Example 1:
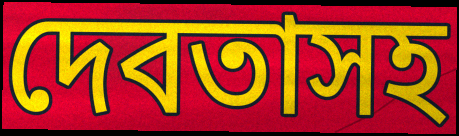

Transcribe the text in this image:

দেবতাসহ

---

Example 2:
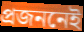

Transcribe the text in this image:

প্রজননেই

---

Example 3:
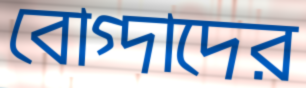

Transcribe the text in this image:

বোগ্দাদের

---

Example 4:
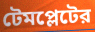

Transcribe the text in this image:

টেমপ্লেটের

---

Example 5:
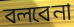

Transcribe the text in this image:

বলবেনা